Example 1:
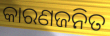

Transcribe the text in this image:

କାରଣଜନିତ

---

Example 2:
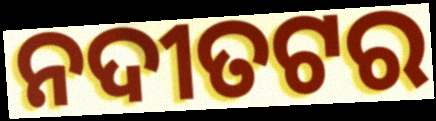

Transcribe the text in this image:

ନଦୀତଟର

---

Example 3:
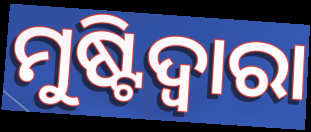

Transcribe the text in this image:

ମୁଷ୍ଟିଦ୍ୱାରା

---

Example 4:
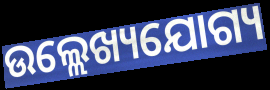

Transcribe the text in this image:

ଉଲ୍ଲେଖ୍ୟଯୋଗ୍ୟ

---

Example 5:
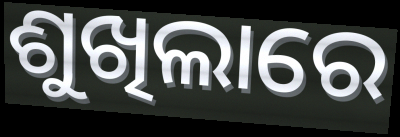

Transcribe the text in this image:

ଶୁଖିଲାରେ